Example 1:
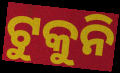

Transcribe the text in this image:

ଟୁକୁନି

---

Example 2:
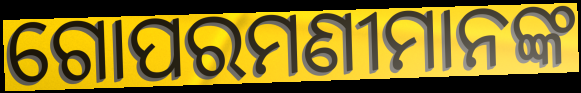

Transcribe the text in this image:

ଗୋପରମଣୀମାନଙ୍କ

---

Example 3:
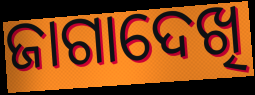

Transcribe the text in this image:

ଜାଗାଦେଖି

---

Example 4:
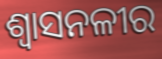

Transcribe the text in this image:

ଶ୍ୱାସନଳୀର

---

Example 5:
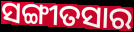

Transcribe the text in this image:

ସଙ୍ଗୀତସାର